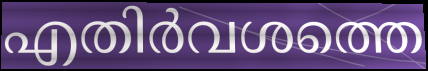
എതിർവശത്തെ